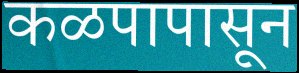
कळपापासून